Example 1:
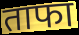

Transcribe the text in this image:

ताफा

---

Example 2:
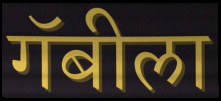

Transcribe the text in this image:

गॅबीला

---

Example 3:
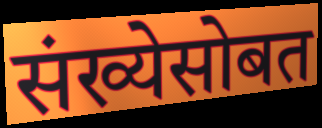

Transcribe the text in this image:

संख्येसोबत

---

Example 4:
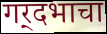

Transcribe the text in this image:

गर्दभाचा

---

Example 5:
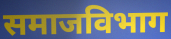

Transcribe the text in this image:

समाजविभाग